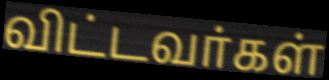
விட்டவர்கள்